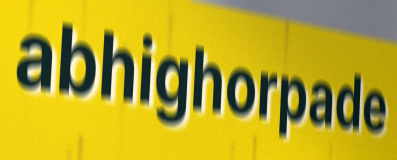
abhighorpade